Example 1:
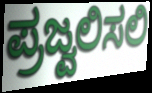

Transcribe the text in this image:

ಪ್ರಜ್ವಲಿಸಲಿ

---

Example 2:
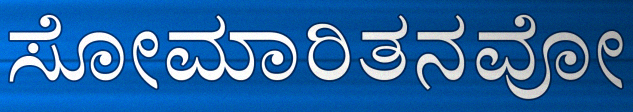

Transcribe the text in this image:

ಸೋಮಾರಿತನವೋ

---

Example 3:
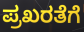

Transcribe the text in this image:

ಪ್ರಖರತೆಗೆ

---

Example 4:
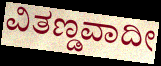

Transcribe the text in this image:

ವಿತಣ್ಡವಾದೀ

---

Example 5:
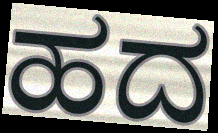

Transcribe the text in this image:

ಹದ